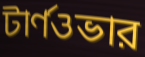
টার্ণওভার